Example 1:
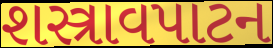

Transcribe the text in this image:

શસ્ત્રાવપાટન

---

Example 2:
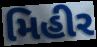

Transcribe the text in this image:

મિહીર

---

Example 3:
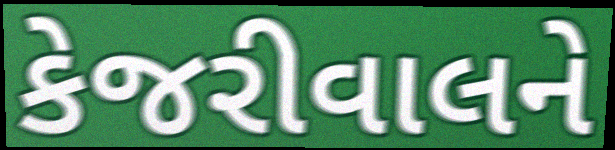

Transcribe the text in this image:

કેજરીવાલને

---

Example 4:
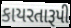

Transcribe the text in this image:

કાયરતારૂપી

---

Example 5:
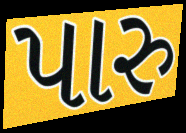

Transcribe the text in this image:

પારુ